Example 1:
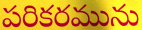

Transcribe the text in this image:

పరికరమును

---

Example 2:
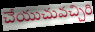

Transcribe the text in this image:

చేయుచువచ్చిరి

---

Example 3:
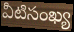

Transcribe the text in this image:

వీటిసంఖ్య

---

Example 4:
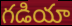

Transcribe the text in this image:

గడియా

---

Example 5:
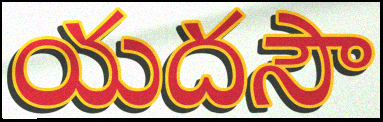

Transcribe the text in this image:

యదసౌ